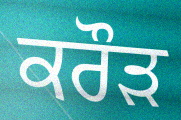
ਕਰੌੜ